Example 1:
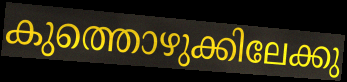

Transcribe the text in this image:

കുത്തൊഴുക്കിലേക്കു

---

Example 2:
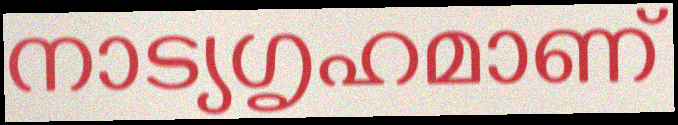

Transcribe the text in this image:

നാട്യഗൃഹമാണ്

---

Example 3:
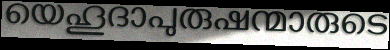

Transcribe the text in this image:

യെഹൂദാപുരുഷന്മാരുടെ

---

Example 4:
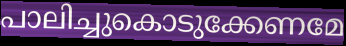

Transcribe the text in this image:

പാലിച്ചുകൊടുക്കേണമേ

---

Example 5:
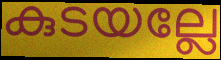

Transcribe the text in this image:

കുടയല്ലേ